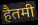
हैतमी